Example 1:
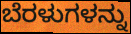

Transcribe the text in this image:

ಬೆರಳುಗಳನ್ನು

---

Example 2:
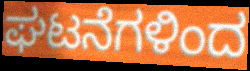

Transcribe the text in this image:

ಘಟನೆಗಳಿಂದ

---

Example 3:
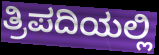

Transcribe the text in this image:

ತ್ರಿಪದಿಯಲ್ಲಿ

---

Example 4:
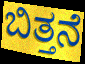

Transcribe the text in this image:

ಬಿತ್ತನೆ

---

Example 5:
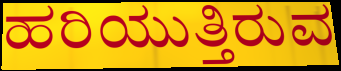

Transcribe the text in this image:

ಹರಿಯುತ್ತಿರುವ